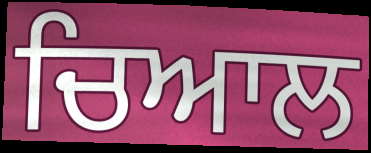
ਚਿਆਲ